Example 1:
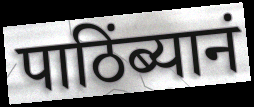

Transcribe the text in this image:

पाठिंब्यानं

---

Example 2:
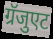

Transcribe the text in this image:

ग्रॅजुएट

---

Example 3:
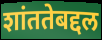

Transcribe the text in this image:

शांततेबद्दल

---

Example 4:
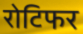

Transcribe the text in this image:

रोटिफर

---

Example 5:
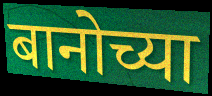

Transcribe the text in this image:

बानोच्या